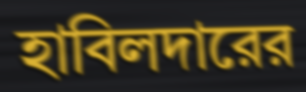
হাবিলদারের